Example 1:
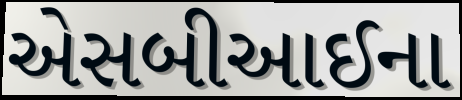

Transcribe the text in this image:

એસબીઆઈના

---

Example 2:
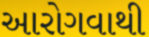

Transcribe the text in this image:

આરોગવાથી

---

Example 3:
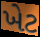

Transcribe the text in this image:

ખેટ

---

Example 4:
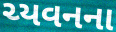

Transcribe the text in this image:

ચ્યવનના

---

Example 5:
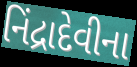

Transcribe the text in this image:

નિંદ્રાદેવીના